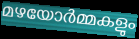
മഴയോർമ്മകളും